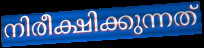
നിരീക്ഷിക്കുന്നത്